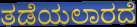
ತಡೆಯಲಾರದೆ